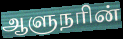
ஆளுநரின்